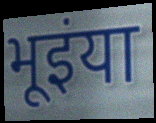
भूइंया